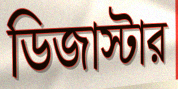
ডিজাস্টার